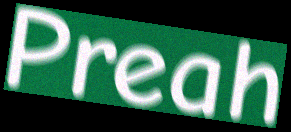
Preah